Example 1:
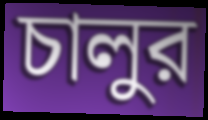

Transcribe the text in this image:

চালুর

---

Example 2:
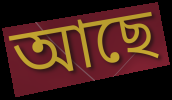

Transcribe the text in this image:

আছে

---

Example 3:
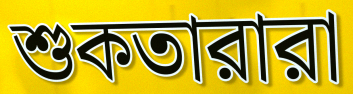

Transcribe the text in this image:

শুকতারারা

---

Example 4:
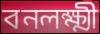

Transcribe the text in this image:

বনলক্ষ্মী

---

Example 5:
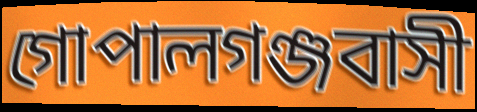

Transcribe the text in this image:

গোপালগঞ্জবাসী